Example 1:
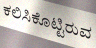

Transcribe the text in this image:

ಕಲಿಸಿಕೊಟ್ಟಿರುವ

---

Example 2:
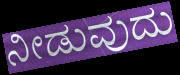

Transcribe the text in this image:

ನೀಡುವುದು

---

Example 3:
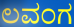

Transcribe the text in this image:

ಲವಂಗ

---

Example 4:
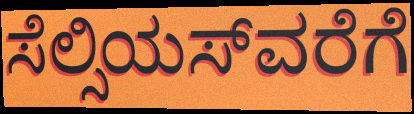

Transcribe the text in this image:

ಸೆಲ್ಸಿಯಸ್‍ವರೆಗೆ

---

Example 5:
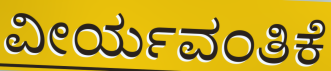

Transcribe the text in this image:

ವೀರ್ಯವಂತಿಕೆ